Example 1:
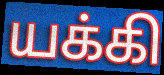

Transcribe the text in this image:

யக்கி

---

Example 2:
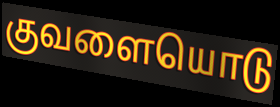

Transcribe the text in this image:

குவளையொடு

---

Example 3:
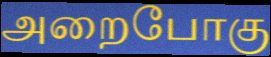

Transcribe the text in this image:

அறைபோகு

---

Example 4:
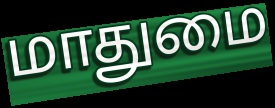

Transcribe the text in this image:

மாதுமை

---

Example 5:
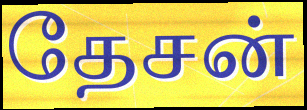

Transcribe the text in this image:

தேசன்